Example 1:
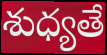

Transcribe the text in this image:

శుధ్యతే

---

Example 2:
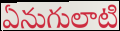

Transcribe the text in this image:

ఏనుగులాటి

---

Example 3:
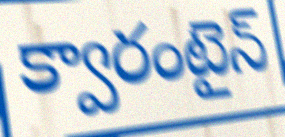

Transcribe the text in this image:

క్వారంటైన్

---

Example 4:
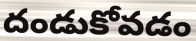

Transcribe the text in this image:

దండుకోవడం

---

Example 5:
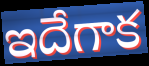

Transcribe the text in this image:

ఇదేగాక